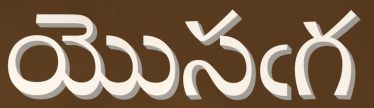
యొసఁగ